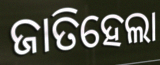
ଜାତିହେଲା